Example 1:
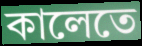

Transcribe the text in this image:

কালেতে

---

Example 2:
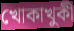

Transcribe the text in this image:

খোকাখুকী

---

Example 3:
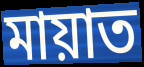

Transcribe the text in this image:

মায়াত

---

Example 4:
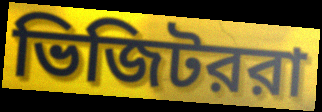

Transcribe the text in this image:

ভিজিটররা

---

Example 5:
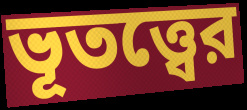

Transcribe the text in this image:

ভূতত্ত্বের